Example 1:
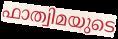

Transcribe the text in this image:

ഫാത്വിമയുടെ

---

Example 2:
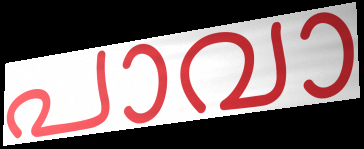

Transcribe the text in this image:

പാവാ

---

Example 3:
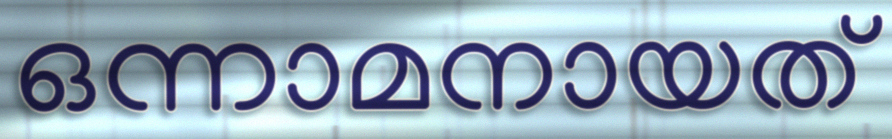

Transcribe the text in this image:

ഒന്നാമനായത്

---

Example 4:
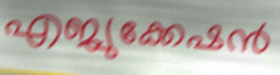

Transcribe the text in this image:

എജ്യുക്കേഷൻ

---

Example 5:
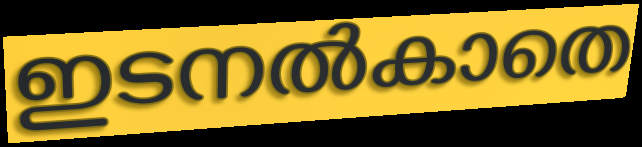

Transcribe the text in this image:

ഇടനൽകാതെ